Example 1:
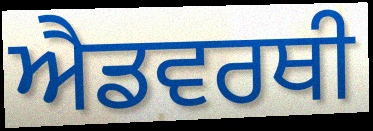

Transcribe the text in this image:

ਐਡਵਰਥੀ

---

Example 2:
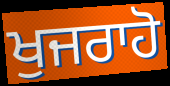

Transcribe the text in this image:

ਖੁਜਰਾਹੋ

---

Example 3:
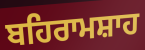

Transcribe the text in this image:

ਬਹਿਰਾਮਸ਼ਾਹ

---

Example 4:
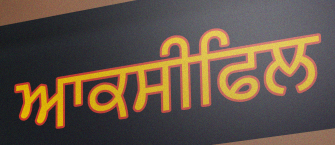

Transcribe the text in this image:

ਆਕਸੀਫਿਲ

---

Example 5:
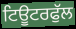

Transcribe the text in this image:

ਟਿਊਟਰਫੁੱਲ